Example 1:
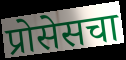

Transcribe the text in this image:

प्रोसेसचा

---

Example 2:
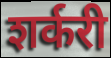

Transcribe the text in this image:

शर्करी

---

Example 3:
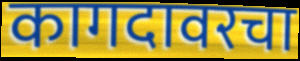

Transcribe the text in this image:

कागदावरचा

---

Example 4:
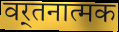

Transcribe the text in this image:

वर्तनात्मक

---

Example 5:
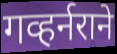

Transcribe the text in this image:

गव्हर्नराने